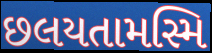
છલયતામસ્મિ